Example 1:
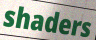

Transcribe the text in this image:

shaders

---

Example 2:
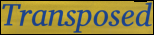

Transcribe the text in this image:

Transposed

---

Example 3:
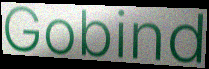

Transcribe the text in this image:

Gobind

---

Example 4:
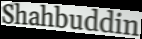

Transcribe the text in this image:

Shahbuddin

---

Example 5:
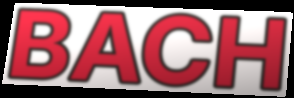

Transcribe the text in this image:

BACH